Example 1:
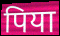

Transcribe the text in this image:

पिया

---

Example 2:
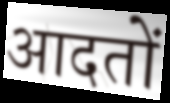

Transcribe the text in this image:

आदतों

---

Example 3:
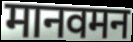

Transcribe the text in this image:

मानवमन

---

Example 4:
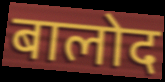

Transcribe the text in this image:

बालोद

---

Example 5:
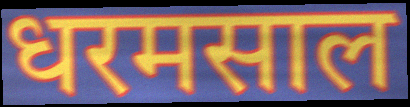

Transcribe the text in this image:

धरमसाल